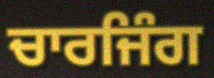
ਚਾਰਜਿੰਗ